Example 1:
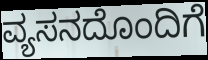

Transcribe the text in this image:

ವ್ಯಸನದೊಂದಿಗೆ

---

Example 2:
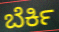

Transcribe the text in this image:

ಬೆರ್ಕಿ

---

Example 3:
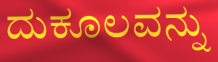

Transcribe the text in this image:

ದುಕೂಲವನ್ನು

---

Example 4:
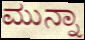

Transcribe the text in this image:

ಮುನ್ನಾ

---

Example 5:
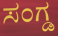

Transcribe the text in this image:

ಸಂಗ್ಡ